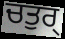
ਚਤੁਰ੍